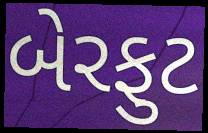
બેરફુટ